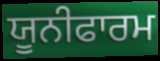
ਯੂਨੀਫਾਰਮ